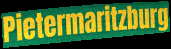
Pietermaritzburg